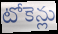
టోకెన్లు